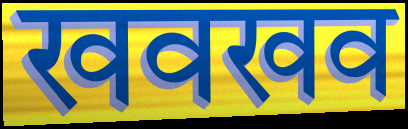
खवखव